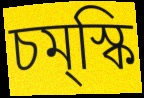
চম্‌স্কি